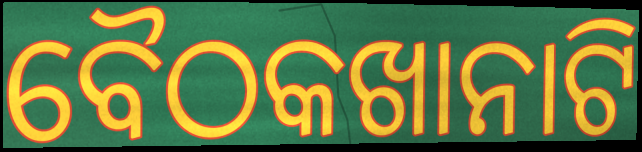
ବୈଠକଖାନାଟି